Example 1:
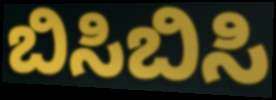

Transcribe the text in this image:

ಬಿಸಿಬಿಸಿ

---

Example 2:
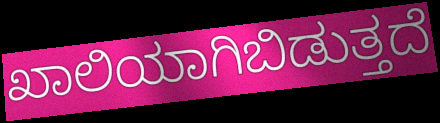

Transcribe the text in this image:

ಖಾಲಿಯಾಗಿಬಿಡುತ್ತದೆ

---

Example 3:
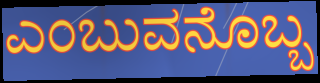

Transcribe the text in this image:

ಎಂಬುವನೊಬ್ಬ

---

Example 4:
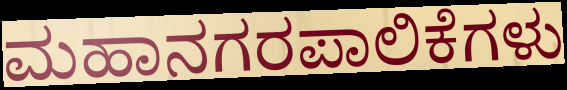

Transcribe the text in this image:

ಮಹಾನಗರಪಾಲಿಕೆಗಳು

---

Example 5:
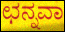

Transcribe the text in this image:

ಛನ್ನವಾ